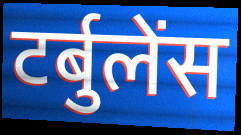
टर्बुलेंस